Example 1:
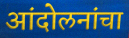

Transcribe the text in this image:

आंदोलनांचा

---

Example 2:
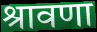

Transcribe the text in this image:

श्रावणा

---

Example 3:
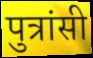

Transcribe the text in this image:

पुत्रांसी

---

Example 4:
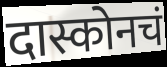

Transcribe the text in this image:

दास्कोनचं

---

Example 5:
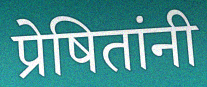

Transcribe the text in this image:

प्रेषितांनी